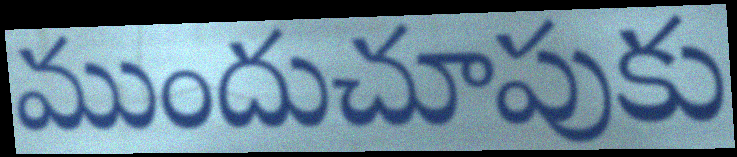
ముందుచూపుకు